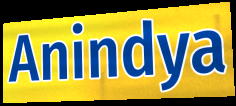
Anindya